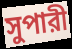
সুপারী